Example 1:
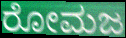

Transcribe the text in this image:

ರೋಮಜ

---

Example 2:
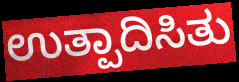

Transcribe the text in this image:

ಉತ್ಪಾದಿಸಿತು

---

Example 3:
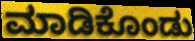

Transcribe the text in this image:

ಮಾಡಿಕೊಂಡು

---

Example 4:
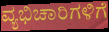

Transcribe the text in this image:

ವ್ಯಭಿಚಾರಿಗಳಿಗೆ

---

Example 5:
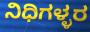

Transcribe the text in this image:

ನಿಧಿಗಳ್ಳರ